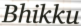
Bhikku